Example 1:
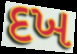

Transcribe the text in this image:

દખ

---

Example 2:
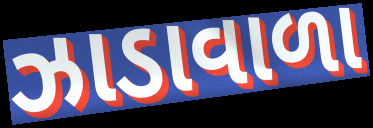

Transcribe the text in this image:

ઝાડાવાળા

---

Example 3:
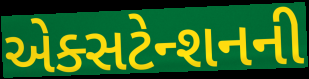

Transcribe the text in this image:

એક્સટેન્શનની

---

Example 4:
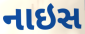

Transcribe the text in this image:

નાઇસ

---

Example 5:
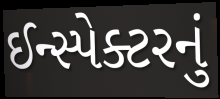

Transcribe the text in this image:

ઈન્સ્પેક્ટરનું